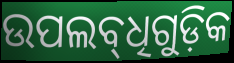
ଉପଲବ୍‌ଧିଗୁଡ଼ିକ